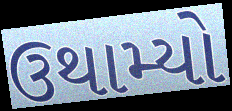
ઉથામ્યો